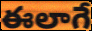
ఈలాగే